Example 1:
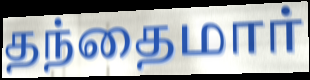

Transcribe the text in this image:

தந்தைமார்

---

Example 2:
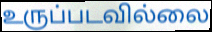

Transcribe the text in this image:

உருப்படவில்லை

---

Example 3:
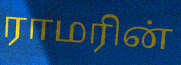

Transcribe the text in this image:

ராமரின்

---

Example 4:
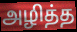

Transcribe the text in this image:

அழித்த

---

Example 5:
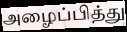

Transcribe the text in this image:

அழைப்பித்து